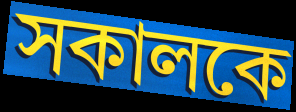
সকালকে